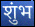
शुंभ